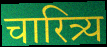
चारित्र्य